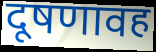
दूषणावह